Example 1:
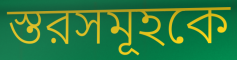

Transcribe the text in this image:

স্তরসমূহকে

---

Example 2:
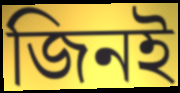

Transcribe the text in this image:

জিনই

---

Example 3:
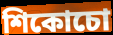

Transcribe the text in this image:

শিকোচো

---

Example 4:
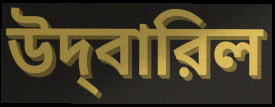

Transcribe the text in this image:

উদ্‌বারিল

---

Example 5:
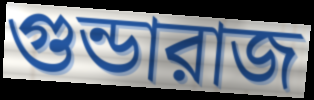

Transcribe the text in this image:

গুন্ডারাজ